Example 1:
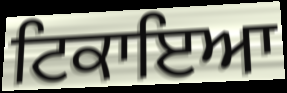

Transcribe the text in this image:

ਟਿਕਾਇਆ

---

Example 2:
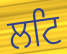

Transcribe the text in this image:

ਲਟਿ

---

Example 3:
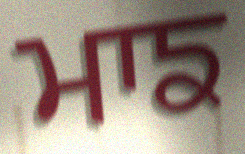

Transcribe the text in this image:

ਮਾਙ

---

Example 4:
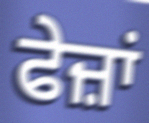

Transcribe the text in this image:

ਫੇਜ਼ਾਂ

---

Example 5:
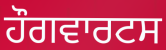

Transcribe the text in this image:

ਹੌਗਵਾਰਟਸ